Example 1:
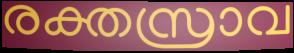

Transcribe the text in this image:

രക്തസ്രാവ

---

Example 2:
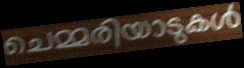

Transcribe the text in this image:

ചെമ്മരിയാടുകൾ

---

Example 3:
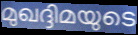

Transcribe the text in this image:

മുഖദ്ദിമയുടെ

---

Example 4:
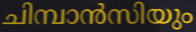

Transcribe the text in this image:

ചിമ്പാൻസിയും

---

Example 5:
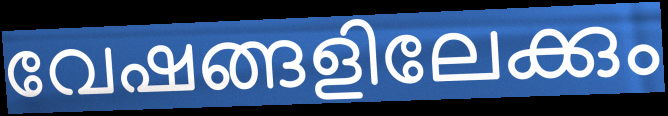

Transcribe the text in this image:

വേഷങ്ങളിലേക്കും